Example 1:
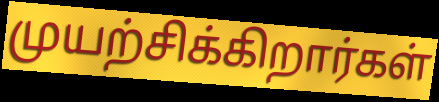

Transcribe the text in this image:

முயற்சிக்கிறார்கள்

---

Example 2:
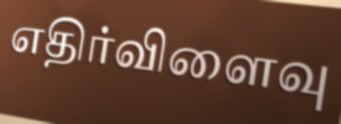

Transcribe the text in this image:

எதிர்விளைவு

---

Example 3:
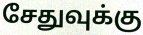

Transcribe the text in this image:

சேதுவுக்கு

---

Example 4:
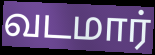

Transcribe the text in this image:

வடமார்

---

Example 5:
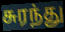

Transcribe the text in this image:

சுரந்து